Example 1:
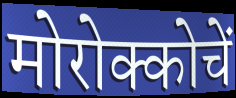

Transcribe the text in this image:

मोरोक्कोचें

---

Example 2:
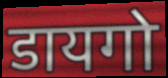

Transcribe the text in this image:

डायगो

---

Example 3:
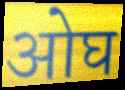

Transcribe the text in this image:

ओघ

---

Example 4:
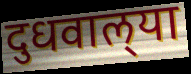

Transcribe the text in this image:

दुधवाल्या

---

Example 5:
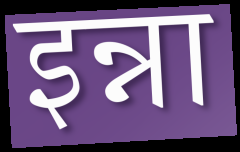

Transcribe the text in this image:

इन्ना